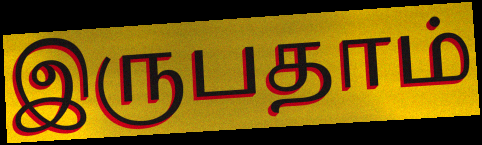
இருபதாம்